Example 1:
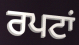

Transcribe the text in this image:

ਰਪਟਾਂ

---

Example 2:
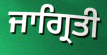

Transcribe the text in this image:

ਜਾਗ੍ਰਿਤੀ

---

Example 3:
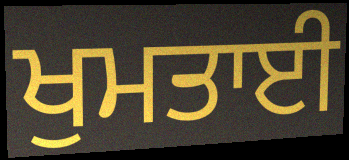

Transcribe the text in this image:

ਖੁਮਤਾਈ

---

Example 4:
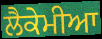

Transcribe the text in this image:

ਲੈਕੇਮੀਆ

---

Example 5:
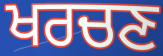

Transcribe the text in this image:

ਖਰਚਣ